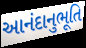
આનંદાનુભૂતિ